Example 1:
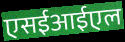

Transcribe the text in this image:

एसईआईएल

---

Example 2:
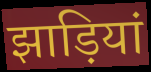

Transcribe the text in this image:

झाड़ियां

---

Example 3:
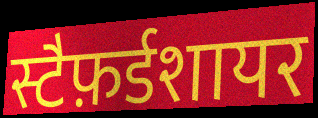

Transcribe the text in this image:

स्टैफ़र्डशायर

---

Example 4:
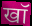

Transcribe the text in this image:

खॉ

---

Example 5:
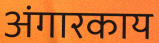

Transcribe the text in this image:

अंगारकाय